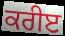
ਕਰੀੲ